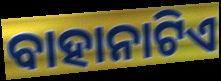
ବାହାନାଟିଏ